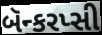
બૅન્કરપ્સી